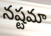
నష్టమా